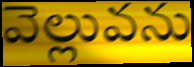
వెల్లువను